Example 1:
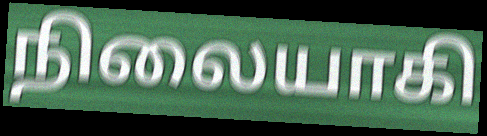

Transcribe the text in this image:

நிலையாகி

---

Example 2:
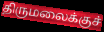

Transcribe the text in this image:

திருமலைக்குச்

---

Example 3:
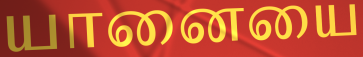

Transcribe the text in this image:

யானையை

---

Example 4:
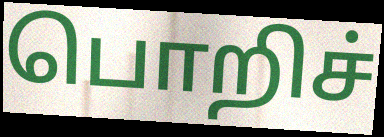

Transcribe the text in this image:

பொறிச்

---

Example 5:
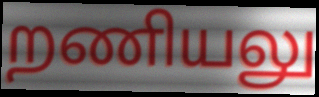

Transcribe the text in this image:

றணியலு